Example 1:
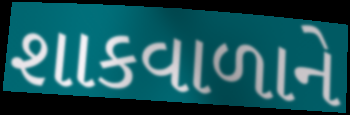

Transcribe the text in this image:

શાકવાળાને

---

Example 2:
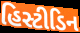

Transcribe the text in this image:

હિસ્ટીડિન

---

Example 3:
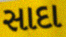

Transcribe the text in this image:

સાદા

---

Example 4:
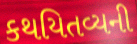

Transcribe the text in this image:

કથયિતવ્યની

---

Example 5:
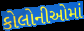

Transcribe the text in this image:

કોલોનીઓમાં